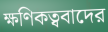
ক্ষণিকত্ববাদের